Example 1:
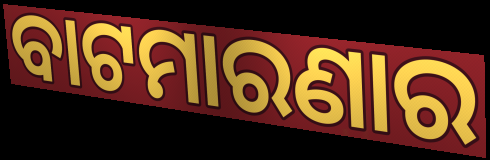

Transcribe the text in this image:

ବାଟମାରଣାର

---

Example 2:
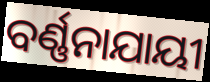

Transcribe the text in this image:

ବର୍ଣ୍ଣନାଯାୟୀ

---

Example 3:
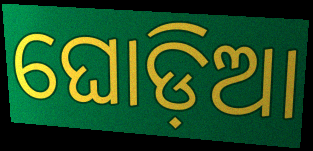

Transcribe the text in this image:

ଘୋଡ଼ିଆ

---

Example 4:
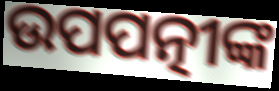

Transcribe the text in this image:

ଉପପତ୍ନୀଙ୍କ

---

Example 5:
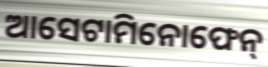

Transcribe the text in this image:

ଆସେଟାମିନୋଫେନ୍